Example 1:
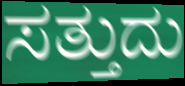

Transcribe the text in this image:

ಸತ್ತುದು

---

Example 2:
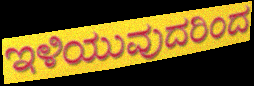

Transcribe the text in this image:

ಇಳಿಯುವುದರಿಂದ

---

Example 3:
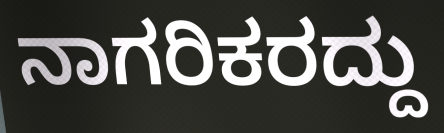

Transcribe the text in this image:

ನಾಗರಿಕರದ್ದು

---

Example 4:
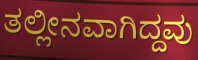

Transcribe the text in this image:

ತಲ್ಲೀನವಾಗಿದ್ದವು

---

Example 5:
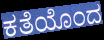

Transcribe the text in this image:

ಕತೆಯೊಂದ